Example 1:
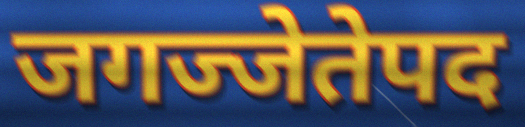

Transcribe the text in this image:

जगज्जेतेपद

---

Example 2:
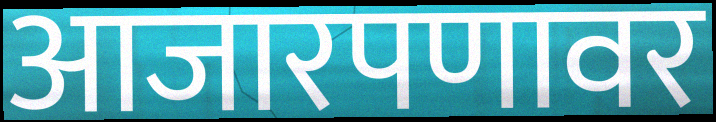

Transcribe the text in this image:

आजारपणावर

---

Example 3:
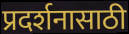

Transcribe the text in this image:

प्रदर्शनासाठी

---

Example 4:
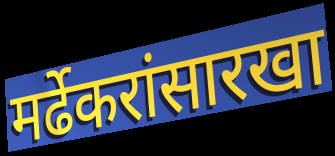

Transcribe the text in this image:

मर्ढेकरांसारखा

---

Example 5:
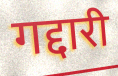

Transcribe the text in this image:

गद्दारी